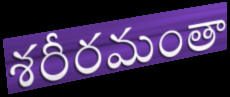
శరీరమంతా